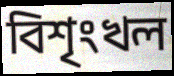
বিশৃংখল